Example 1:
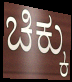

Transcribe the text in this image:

ಚಿಕ್ಕು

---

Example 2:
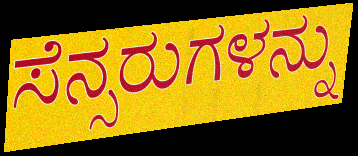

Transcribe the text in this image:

ಸೆನ್ಸರುಗಳನ್ನು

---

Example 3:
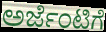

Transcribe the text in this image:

ಅರ್ಜೆಂಟಿಗೆ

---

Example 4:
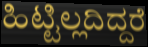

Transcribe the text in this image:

ಹಿಟ್ಟಿಲ್ಲದಿದ್ದರೆ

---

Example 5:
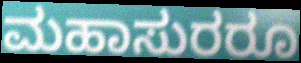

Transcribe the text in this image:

ಮಹಾಸುರರೂ